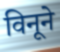
विनूने